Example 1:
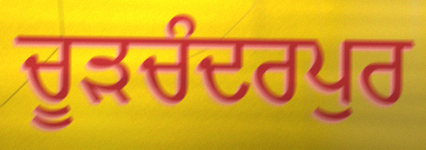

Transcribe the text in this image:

ਚੂੜਚੰਦਰਪੁਰ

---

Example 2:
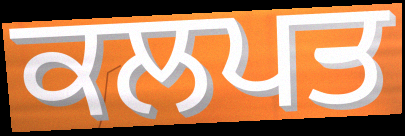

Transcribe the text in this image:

ਕਲਪਤ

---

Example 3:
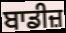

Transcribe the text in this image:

ਬਾਡੀਜ਼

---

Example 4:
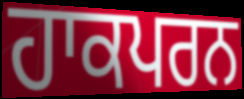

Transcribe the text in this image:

ਹਾਕਪਰਨ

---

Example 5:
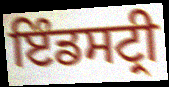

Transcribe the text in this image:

ਇੰਡਸਟ੍ਰੀ